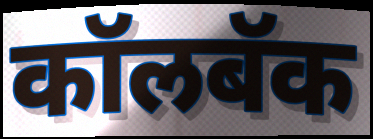
कॉलबॅक